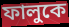
ফালুকে